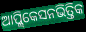
ଆପ୍ଲିକେସନଭିତ୍ତିକ